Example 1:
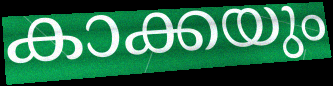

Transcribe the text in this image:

കാക്കയും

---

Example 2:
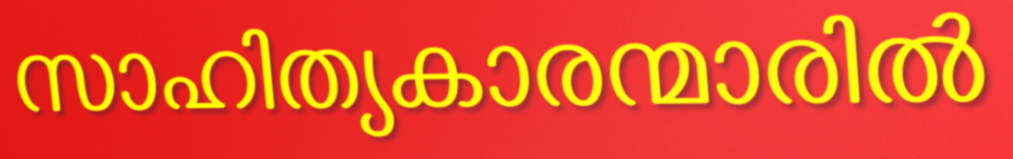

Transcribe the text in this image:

സാഹിത്യകാരന്മാരിൽ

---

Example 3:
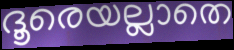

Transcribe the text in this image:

ദൂരെയല്ലാതെ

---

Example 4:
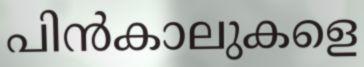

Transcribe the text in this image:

പിൻകാലുകളെ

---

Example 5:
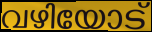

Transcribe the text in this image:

വഴിയോട്